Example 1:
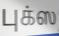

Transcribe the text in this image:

புக்ஸ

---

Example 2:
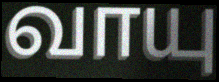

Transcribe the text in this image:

வாயு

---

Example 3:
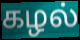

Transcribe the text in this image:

கழல்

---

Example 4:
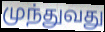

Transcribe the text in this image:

முந்துவது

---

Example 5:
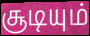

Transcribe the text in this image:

சூடியும்